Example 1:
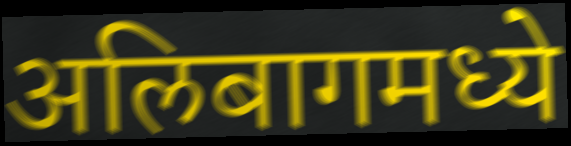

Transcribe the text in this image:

अलिबागमध्ये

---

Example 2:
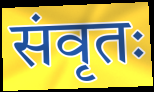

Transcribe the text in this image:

संवृतः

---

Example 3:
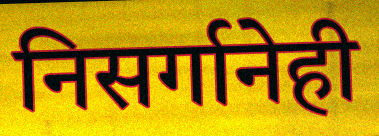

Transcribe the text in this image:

निसर्गानेही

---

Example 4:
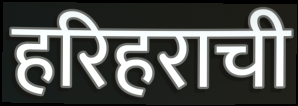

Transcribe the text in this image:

हरिहराची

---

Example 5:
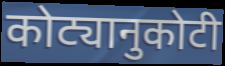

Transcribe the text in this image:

कोट्यानुकोटी